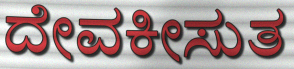
ದೇವಕೀಸುತ